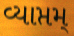
વ્યાપ્તમ્